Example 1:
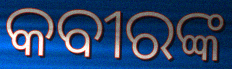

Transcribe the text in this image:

କବୀରଙ୍କ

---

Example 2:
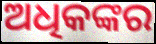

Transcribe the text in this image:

ଅଧିକଙ୍କର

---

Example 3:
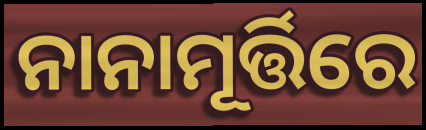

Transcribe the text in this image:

ନାନାମୂର୍ତ୍ତିରେ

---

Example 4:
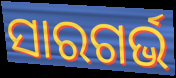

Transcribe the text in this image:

ସାରଗର୍ଭ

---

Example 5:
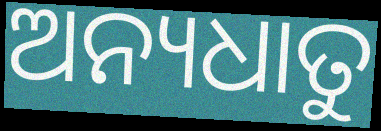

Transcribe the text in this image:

ଅନ୍ୟଧାତୁ